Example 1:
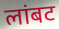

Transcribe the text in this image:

लांबट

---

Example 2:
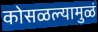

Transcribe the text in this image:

कोसळल्यामुळं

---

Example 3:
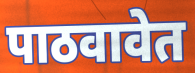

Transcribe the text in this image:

पाठवावेत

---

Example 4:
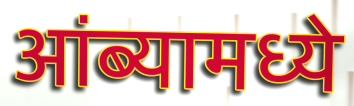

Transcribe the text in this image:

आंब्यामध्ये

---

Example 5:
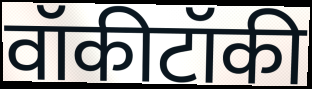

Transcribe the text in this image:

वॉकीटॉकी